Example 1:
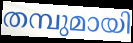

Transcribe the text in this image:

തമ്പുമായി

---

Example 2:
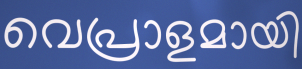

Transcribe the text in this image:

വെപ്രാളമായി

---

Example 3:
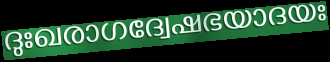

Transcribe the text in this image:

ദുഃഖരാഗദ്വേഷഭയാദയഃ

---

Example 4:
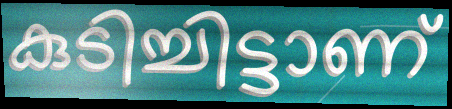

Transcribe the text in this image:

കുടിച്ചിട്ടാണ്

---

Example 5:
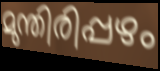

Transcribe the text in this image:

മുന്തിരിപ്പഴം